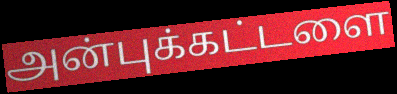
அன்புக்கட்டளை